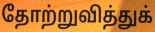
தோற்றுவித்துக்